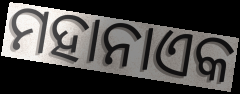
ମହାନାଏକ